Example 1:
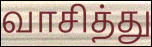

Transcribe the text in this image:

வாசித்து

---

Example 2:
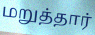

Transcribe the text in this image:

மறுத்தார்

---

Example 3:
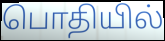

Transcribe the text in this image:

பொதியில்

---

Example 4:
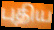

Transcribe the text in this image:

புதிய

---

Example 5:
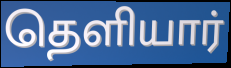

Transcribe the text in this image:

தெளியார்